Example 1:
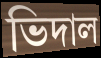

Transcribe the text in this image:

ভিদাল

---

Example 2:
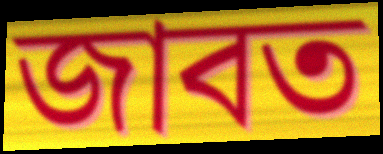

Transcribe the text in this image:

জাবত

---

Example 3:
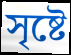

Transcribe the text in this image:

সৃষ্টে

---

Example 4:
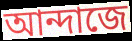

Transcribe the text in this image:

আন্দাজে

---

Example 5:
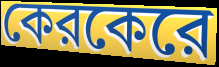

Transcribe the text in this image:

কেরকেরে